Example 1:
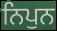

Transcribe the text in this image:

ਨਿਪੁਨ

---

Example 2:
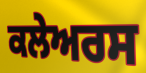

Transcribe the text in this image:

ਕਲੇਅਰਸ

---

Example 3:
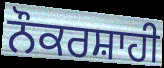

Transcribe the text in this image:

ਨੌਕਰਸ਼ਾਹੀ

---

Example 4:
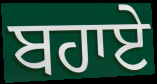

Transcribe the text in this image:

ਬਹਾਏ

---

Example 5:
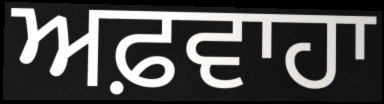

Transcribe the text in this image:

ਅਫ਼ਵਾਹਾ